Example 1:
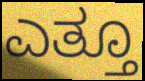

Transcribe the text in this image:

ಎತ್ತೂ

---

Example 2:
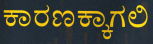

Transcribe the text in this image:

ಕಾರಣಕ್ಕಾಗಲಿ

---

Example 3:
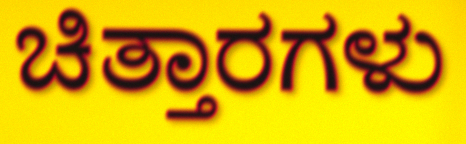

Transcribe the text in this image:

ಚಿತ್ತಾರಗಳು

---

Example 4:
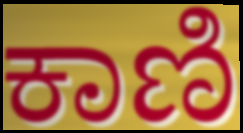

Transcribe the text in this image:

ಕಾಣಿ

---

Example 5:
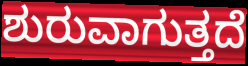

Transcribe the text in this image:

ಶುರುವಾಗುತ್ತದೆ